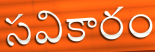
సవికారం